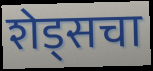
शेड्सचा